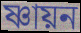
ষ্ণায়ন